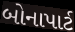
બોનાપાર્ટ